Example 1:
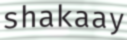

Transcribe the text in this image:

shakaay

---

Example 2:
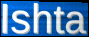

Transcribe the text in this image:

Ishta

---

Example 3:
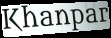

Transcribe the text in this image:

Khanpar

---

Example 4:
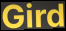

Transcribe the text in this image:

Gird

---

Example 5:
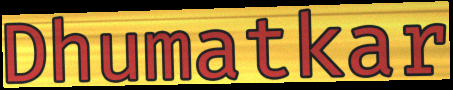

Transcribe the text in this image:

Dhumatkar